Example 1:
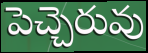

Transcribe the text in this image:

పెచ్చెరువు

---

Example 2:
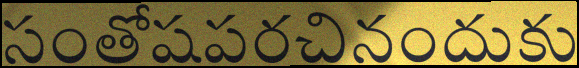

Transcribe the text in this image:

సంతోషపరచినందుకు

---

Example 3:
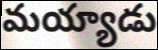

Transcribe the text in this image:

మయ్యాడు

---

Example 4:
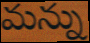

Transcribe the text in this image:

మన్ను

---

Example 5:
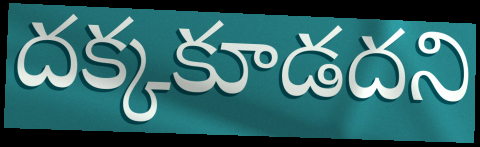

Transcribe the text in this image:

దక్కకూడదని